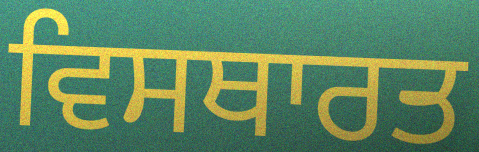
ਵਿਸਥਾਰਤ